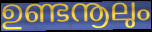
ഉണ്ടനൂലും